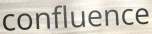
confluence